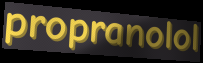
propranolol